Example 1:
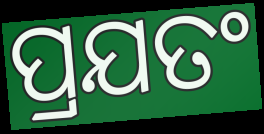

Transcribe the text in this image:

ପ୍ରଯତଂ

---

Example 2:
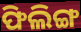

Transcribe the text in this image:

ଫିଲିଙ୍ଗ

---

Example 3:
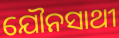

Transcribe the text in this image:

ଯୌନସାଥୀ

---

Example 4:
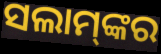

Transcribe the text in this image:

ସଲାମ୍‌ଙ୍କର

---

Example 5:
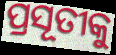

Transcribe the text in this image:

ପ୍ରସୂତୀକୁ